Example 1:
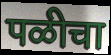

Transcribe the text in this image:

पळीचा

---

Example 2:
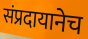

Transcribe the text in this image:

संप्रदायानेच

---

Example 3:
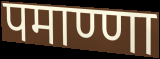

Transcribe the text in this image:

पमाण्णा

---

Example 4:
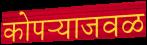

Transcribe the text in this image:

कोपऱ्याजवळ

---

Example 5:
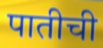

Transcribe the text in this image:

पातीची